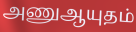
அணுஆயுதம்